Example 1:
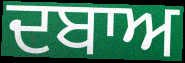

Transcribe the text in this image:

ਦਬਾਅ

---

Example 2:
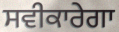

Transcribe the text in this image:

ਸਵੀਕਾਰੇਗਾ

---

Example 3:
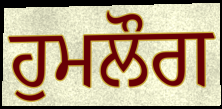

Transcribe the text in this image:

ਹੁਮਲੌਗ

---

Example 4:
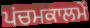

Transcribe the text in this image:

ਪਂਚਮਕਾਲਮੇਂ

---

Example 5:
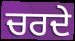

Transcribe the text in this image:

ਚਰਦੇ